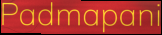
Padmapani